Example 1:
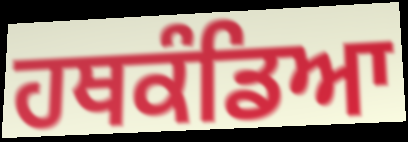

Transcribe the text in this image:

ਹਥਕੰਡਿਆ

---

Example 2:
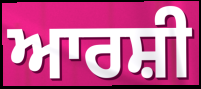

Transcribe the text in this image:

ਆਰਸ਼ੀ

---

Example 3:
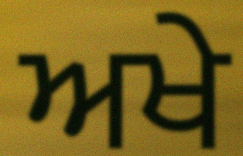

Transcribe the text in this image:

ਅਖੇ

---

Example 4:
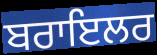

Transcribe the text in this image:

ਬਰਾਇਲਰ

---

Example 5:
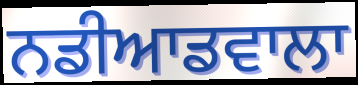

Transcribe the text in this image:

ਨਡੀਆਡਵਾਲਾ